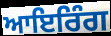
ਆਇਰਿੰਗ